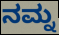
ನಮ್ನ